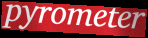
pyrometer